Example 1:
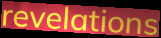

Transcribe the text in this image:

revelations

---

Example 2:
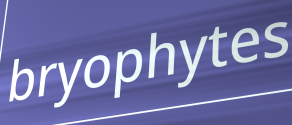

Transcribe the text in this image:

bryophytes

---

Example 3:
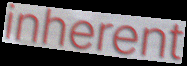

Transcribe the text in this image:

inherent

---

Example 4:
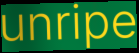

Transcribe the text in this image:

unripe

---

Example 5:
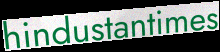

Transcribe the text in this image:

hindustantimes